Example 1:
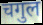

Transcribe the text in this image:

चगुल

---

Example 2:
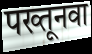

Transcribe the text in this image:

पख्तूनवा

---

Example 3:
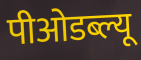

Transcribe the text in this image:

पीओडब्ल्यू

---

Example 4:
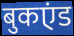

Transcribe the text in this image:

बुकएंड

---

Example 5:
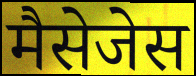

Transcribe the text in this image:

मैसेजेस